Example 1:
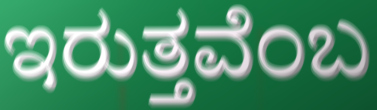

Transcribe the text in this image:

ಇರುತ್ತವೆಂಬ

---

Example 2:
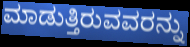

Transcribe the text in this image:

ಮಾಡುತ್ತಿರುವವರನ್ನು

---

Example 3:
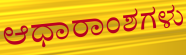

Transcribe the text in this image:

ಆಧಾರಾಂಶಗಳು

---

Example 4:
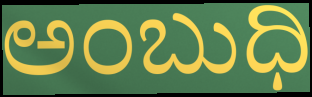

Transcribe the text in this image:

ಅಂಬುಧಿ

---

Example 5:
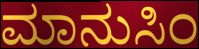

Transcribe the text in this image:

ಮಾನುಸಿಂ